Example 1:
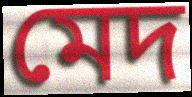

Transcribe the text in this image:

মেদ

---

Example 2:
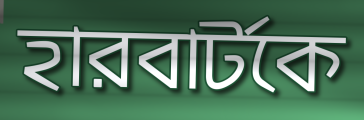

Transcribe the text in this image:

হারবার্টকে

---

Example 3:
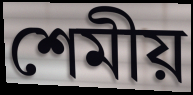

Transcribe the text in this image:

শেমীয়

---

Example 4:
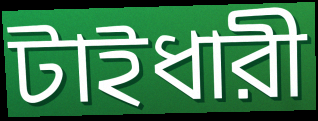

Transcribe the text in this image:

টাইধারী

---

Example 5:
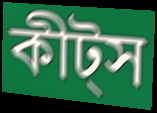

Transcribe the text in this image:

কীট্স